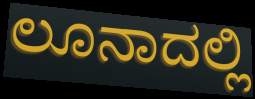
ಲೂನಾದಲ್ಲಿ